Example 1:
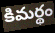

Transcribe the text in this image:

కిమర్థం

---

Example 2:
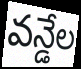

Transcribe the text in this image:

వన్డేల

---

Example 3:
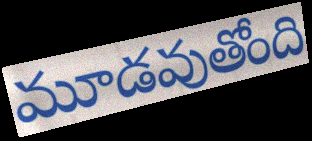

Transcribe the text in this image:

మూడవుతోంది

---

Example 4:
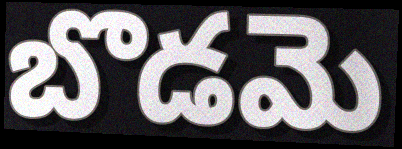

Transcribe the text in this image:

బొడమె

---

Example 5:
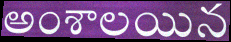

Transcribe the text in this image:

అంశాలయిన